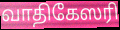
வாதிகேஸரி